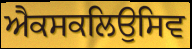
ਐਕਸਕਲਿਉਸਿਵ